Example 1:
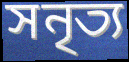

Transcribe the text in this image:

সনৃত্য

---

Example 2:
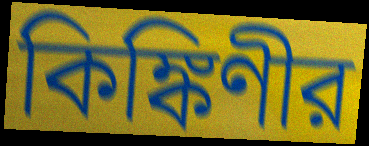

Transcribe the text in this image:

কিঙ্কিণীর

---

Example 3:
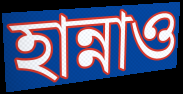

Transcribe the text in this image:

হান্নাও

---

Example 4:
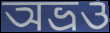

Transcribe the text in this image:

অভ্রও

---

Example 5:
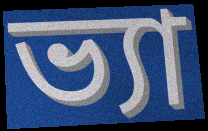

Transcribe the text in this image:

ভ্যা